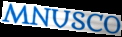
MNUSCO